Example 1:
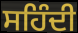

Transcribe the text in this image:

ਸਹਿੰਦੀ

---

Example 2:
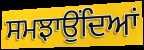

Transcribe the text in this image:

ਸਮਝਾਉਂਦਿਆਂ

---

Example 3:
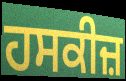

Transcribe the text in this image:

ਹਸਕੀਜ਼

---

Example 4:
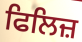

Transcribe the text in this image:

ਫਿਲਿਜ਼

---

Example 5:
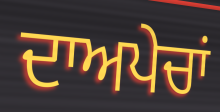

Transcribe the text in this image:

ਦਾਅਪੇਚਾਂ